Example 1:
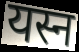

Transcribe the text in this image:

यस्न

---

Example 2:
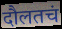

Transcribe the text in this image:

दौलतचं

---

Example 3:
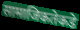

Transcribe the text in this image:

सामाजिकतेकडे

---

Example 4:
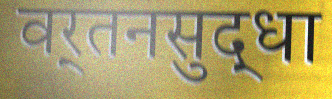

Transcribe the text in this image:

वर्तनसुद्धा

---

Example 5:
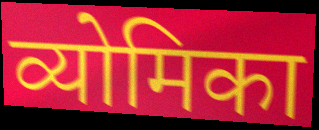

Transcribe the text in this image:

व्योमिका